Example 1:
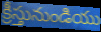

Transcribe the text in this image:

క్రీస్తునుండియు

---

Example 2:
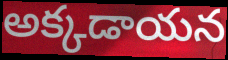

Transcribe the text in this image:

అక్కడాయన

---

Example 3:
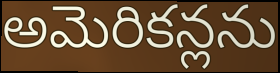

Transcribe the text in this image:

అమెరికన్లను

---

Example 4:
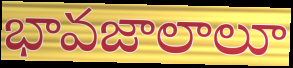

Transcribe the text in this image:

భావజాలాలూ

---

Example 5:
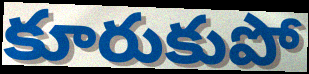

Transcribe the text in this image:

కూరుకుపో